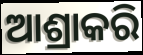
ଆଶ୍ରାକରି